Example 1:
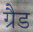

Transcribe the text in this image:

ग्रैड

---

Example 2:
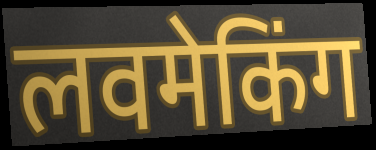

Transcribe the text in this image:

लवमेकिंग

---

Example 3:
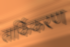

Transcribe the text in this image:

तार्किकरण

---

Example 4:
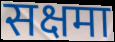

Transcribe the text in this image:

सक्षमा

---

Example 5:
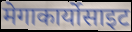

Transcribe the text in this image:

मेगाकार्योसाइट